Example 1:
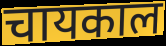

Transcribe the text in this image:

चायकाल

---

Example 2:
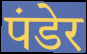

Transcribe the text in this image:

पंडेर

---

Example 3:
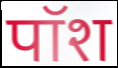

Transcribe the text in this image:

पॉश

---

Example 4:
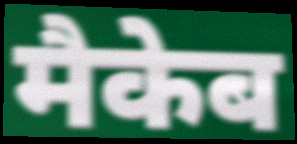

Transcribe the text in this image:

मैकेब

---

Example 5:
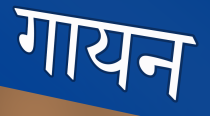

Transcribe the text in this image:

गायन